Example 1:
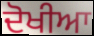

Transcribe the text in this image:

ਦੋਖੀਆ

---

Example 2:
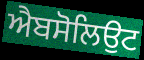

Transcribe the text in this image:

ਐਬਸੋਲਿਉਟ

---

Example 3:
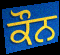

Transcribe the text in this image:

ਕੌਨ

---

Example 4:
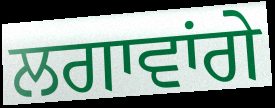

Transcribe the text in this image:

ਲਗਾਵਾਂਗੇ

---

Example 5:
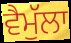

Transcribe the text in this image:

ਵੈਮੁੱਲਾ